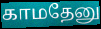
காமதேனு